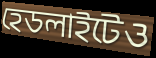
হেডলাইটেও